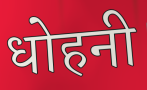
धोहनी